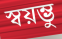
স্বয়ম্ভু